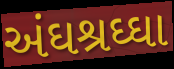
અંઘશ્રઘ્ઘા